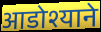
आडोश्याने